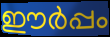
ഈർപ്പം